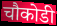
चौकोडी